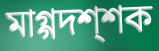
মাগ্গদশ্শক